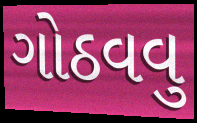
ગોઠવવુ